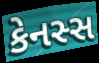
કેનસ્સ